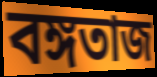
বঙ্গতাজ